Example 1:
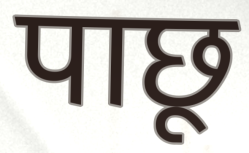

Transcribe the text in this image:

पाछू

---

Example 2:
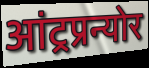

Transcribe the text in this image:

आंट्रप्रन्योर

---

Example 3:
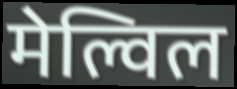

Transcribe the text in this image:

मेल्विल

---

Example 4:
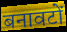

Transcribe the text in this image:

बनावटों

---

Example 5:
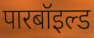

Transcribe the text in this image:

पारबॉइल्ड